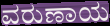
ವರುಣಾಯ